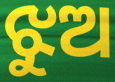
ଝୁଅ